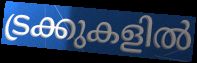
ട്രക്കുകളിൽ